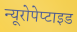
न्यूरोपेप्टाइड